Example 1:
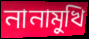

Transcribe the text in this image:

নানামুখি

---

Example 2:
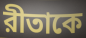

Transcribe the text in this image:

রীতাকে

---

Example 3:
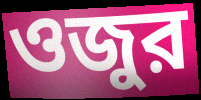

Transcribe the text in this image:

ওজুর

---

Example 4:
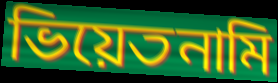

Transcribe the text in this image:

ভিয়েতনামি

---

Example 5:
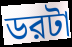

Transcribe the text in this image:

ডরটা